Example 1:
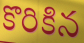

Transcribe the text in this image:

కొరికిన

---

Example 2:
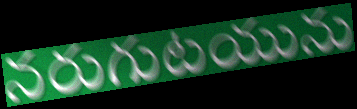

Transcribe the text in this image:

నరుగుటయును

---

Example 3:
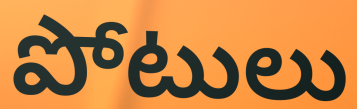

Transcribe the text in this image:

పోటులు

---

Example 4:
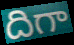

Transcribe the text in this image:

దిగా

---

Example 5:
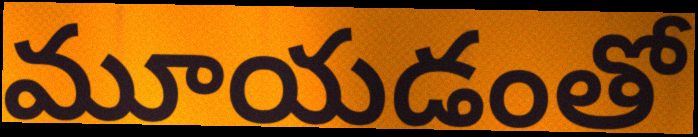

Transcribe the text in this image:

మూయడంతో